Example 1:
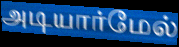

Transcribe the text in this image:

அடியார்மேல்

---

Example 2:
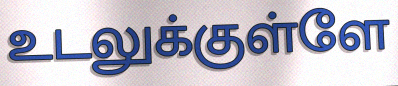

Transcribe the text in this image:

உடலுக்குள்ளே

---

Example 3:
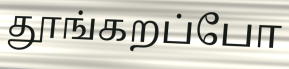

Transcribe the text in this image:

தூங்கறப்போ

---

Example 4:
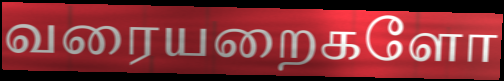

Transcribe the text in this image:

வரையறைகளோ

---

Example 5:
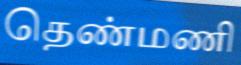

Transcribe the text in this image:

தெண்மணி